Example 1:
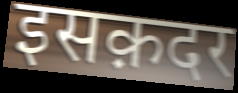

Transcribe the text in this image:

इसक़दर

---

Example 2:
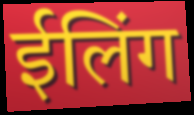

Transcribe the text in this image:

ईलिंग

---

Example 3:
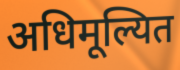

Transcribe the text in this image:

अधिमूल्यित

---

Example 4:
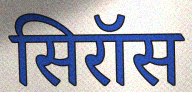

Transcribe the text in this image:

सिरॉस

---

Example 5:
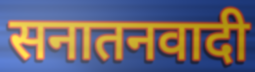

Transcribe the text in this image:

सनातनवादी